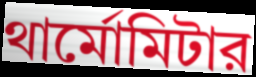
থার্মোমিটার